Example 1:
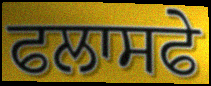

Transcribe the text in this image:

ਫਲਾਸਫੇ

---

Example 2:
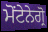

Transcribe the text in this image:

ਮੋਂਟੇਨੇਗ੍ਰੋ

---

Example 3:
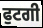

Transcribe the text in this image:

ਫੁਟਗੀ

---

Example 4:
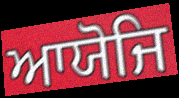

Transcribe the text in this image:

ਆਯੋਜਿ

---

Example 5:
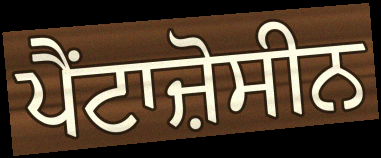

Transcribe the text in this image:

ਪੈਂਟਾਜ਼ੋਸੀਨ